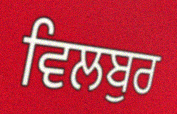
ਵਿਲਬੁਰ